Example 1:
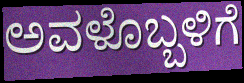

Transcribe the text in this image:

ಅವಳೊಬ್ಬಳಿಗೆ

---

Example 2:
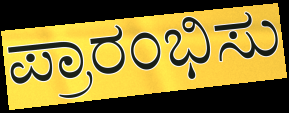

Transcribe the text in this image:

ಪ್ರಾರಂಭಿಸು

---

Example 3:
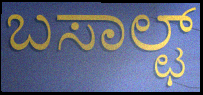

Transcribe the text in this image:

ಬಸಾಲ್ಟ್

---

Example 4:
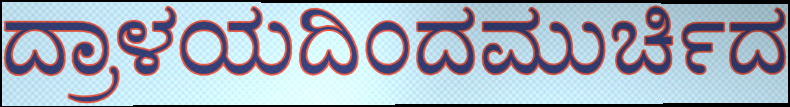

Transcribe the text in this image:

ದ್ರಾಳಯದಿಂದಮುರ್ಚಿದ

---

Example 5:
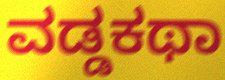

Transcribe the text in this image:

ವಡ್ಡಕಥಾ